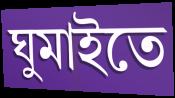
ঘুমাইতে